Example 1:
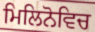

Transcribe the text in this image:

ਮਿਲਿਨੋਵਿਚ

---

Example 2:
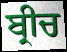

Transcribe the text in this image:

ਬ੍ਰੀਚ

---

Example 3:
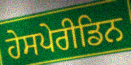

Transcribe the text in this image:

ਹੇਸਪੇਰੀਡਿਨ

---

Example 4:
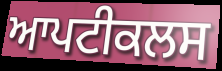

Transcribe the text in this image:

ਆਪਟੀਕਲਸ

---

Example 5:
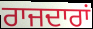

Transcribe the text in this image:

ਰਾਜਦਾਰਾਂ